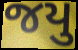
જયુ